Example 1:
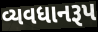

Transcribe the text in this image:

વ્યવધાનરૂપ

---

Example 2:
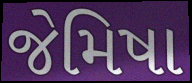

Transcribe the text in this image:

જેમિષા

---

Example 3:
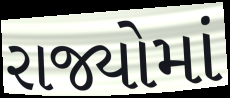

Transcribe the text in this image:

રાજ્યોમાં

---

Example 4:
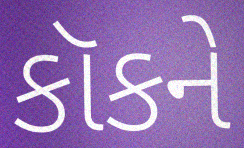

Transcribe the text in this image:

કૉકને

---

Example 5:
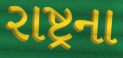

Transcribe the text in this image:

રાષ્ટ્રના